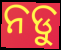
ନଡୁ